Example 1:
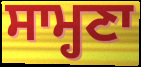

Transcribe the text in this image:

ਸਾਮ੍ਹਣਾ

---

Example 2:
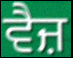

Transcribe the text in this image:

ਵੈਜ਼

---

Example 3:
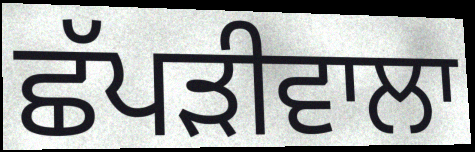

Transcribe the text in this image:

ਛੱਪੜੀਵਾਲਾ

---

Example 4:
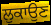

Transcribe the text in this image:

ਲੁਕਾਉਣ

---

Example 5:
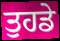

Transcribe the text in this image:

ਤੁਹਡੇ